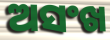
ଅସଂଖ